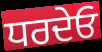
ਧਰਦੇਓ